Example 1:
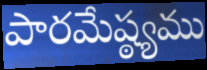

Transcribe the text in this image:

పారమేష్ఠ్యము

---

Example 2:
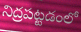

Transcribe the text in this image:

నిద్రపట్టడంలో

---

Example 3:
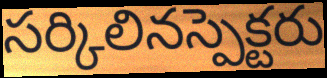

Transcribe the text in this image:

సర్కిలినస్పెక్టరు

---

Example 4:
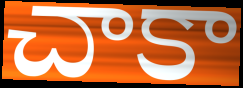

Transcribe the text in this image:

చాకా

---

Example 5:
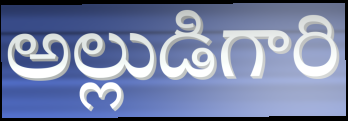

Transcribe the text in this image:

అల్లుడిగారి